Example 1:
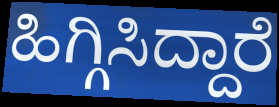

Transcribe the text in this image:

ಹಿಗ್ಗಿಸಿದ್ದಾರೆ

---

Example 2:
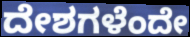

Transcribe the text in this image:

ದೇಶಗಳೆಂದೇ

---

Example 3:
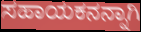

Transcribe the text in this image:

ಸಹಾಯಕನನ್ನಾಗಿ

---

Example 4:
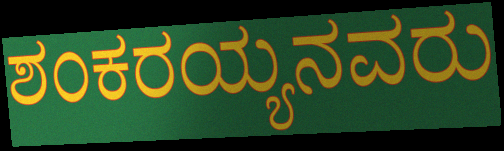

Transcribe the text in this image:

ಶಂಕರಯ್ಯನವರು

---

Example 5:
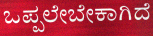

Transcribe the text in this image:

ಒಪ್ಪಲೇಬೇಕಾಗಿದೆ